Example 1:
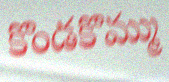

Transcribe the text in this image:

కొండకొమ్ము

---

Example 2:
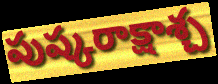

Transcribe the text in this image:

పుష్కరాక్షాశ్చ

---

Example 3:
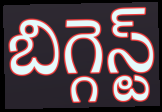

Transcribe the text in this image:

బిగ్గెస్ట్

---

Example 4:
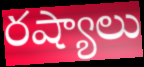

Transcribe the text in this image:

రష్యాలు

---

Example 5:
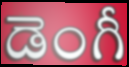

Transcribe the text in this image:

డెంగీ